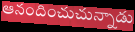
ఆనందించుచున్నాడు